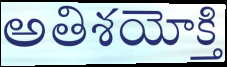
అతిశయోక్తి